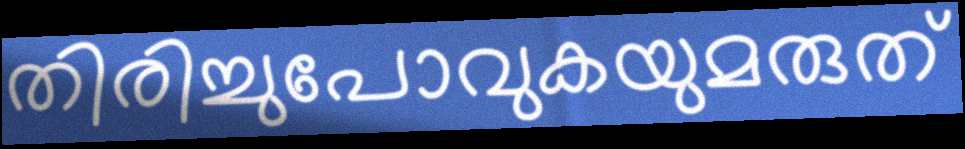
തിരിച്ചുപോവുകയുമരുത്